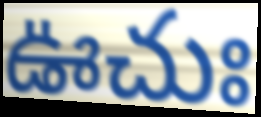
ఊచుః